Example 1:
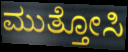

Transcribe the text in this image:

ಮುತ್ತೋಸಿ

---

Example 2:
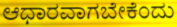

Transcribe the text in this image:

ಆಧಾರವಾಗಬೇಕೆಂದು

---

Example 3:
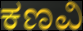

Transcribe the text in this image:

ಕಣವಿ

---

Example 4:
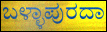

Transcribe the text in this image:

ಬಳ್ಳಾಪುರದಾ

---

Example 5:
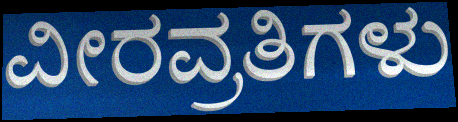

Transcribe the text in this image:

ವೀರವ್ರತಿಗಳು